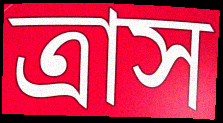
ত্রাস